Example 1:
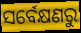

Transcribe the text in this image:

ସର୍ବେକ୍ଷଣରୁ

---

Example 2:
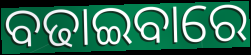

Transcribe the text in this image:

ବଢାଇବାରେ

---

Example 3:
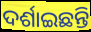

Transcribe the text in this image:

ଦର୍ଶାଇଛନ୍ତି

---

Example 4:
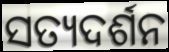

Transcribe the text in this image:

ସତ୍ୟଦର୍ଶନ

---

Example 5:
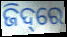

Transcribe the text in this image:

ଜିଦ୍‌ରେ